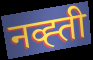
नव्ह्ती